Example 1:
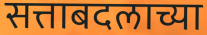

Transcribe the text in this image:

सत्ताबदलाच्या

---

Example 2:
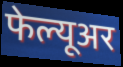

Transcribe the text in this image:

फेल्यूअर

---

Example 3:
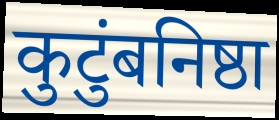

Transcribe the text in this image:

कुटुंबनिष्ठा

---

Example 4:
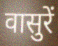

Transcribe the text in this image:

वासुरें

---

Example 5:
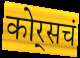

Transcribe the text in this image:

कोर्सचं